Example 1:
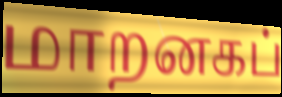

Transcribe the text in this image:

மாறனகப்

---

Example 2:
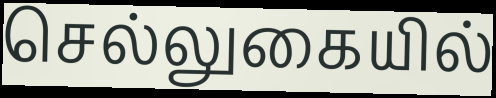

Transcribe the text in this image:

செல்லுகையில்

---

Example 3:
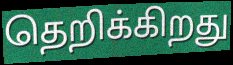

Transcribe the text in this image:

தெறிக்கிறது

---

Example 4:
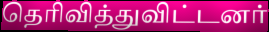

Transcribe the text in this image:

தெரிவித்துவிட்டனர்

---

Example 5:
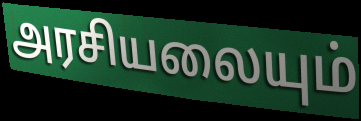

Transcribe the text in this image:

அரசியலையும்